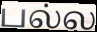
பல்ல